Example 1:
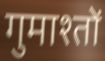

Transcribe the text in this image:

गुमाश्तों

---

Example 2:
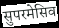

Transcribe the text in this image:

सुपरमेसिव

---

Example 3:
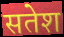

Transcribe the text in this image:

सतेश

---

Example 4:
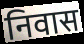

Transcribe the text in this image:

निवास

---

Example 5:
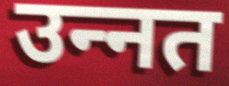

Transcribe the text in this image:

उन्‍नत